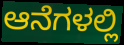
ಆನೆಗಳಲ್ಲಿ